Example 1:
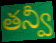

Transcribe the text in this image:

తన్వీ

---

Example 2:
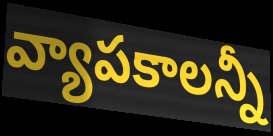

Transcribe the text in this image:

వ్యాపకాలన్నీ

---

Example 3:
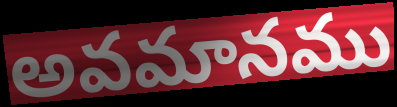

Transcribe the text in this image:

అవమానము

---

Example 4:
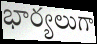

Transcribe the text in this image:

భార్యలుగా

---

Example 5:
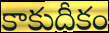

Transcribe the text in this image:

కాకుదీకం